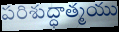
పరిశుద్ధాత్మయు